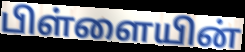
பிள்ளையின்